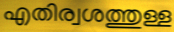
എതിര്വശത്തുള്ള